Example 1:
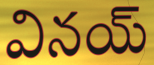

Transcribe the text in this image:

వినయ్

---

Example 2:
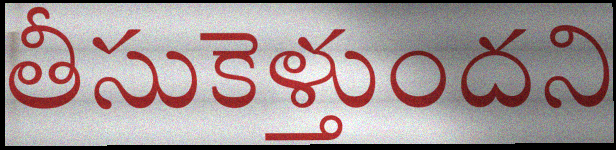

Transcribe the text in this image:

తీసుకెళ్తుందని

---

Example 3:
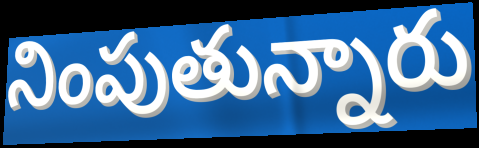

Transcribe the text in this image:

నింపుతున్నారు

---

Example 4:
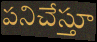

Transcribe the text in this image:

పనిచేస్తూ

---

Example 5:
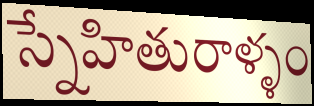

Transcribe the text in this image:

స్నేహితురాళ్ళం